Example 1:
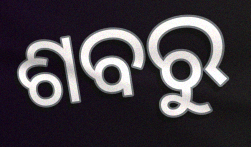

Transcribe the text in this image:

ଶବରୁ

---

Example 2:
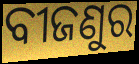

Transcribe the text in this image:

ବୀଜଣୁର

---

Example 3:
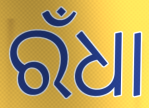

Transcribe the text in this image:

ରଁଧା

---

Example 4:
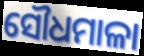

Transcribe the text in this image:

ସୌଧମାଳା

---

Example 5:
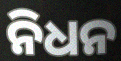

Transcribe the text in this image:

ନିଧନ